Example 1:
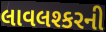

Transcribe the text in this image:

લાવલશ્કરની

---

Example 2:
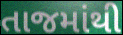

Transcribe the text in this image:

તાજમાંથી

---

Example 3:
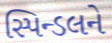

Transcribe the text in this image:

સ્પિન્ડલને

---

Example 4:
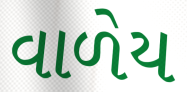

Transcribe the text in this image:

વાળેય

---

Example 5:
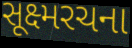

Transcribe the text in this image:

સૂક્ષ્મરચના